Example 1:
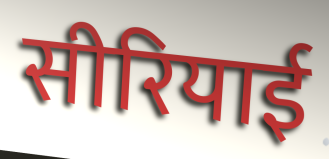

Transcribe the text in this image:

सीरियाई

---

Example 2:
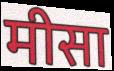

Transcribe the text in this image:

मीसा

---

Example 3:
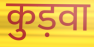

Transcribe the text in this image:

कुड़वा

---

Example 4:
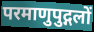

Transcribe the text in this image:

परमाणुपुद्गलों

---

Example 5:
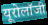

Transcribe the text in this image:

यूरोलॉजी